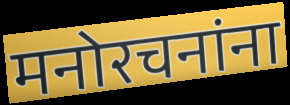
मनोरचनांना